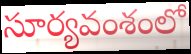
సూర్యవంశంలో